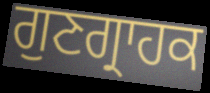
ਗੁਣਗ੍ਰਾਹਕ